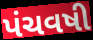
પંચવષી